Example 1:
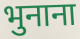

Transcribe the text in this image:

भुनाना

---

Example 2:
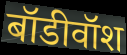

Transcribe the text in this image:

बॉडीवॉश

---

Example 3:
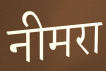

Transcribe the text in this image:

नीमरा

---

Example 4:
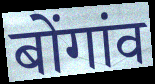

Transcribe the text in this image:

बोंगांव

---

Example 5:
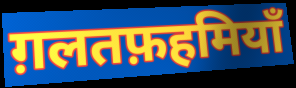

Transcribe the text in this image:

ग़लतफ़हमियाँ